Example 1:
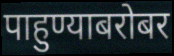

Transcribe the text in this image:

पाहुण्याबरोबर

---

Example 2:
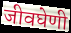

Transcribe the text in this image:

जीवघेणी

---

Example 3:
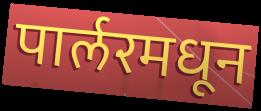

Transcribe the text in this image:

पार्लरमधून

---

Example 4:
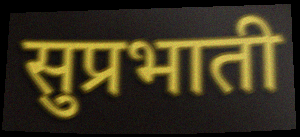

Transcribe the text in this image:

सुप्रभाती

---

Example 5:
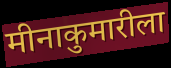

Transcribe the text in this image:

मीनाकुमारीला